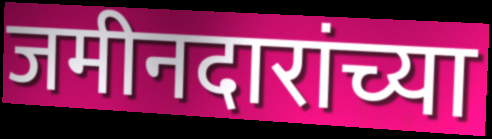
जमीनदारांच्या